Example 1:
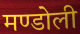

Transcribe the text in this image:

मण्डोली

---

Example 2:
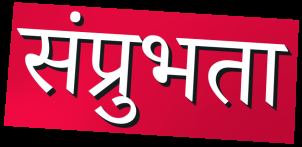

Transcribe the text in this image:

संप्रुभता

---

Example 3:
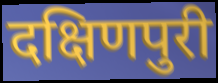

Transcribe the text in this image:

दक्षिणपुरी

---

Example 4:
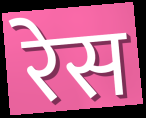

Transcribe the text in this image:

रेस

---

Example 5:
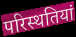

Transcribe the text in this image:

परिस्थतियां